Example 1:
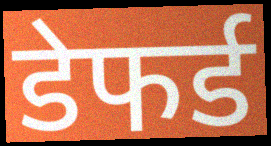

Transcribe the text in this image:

डेफर्ड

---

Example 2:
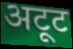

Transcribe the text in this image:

अटूट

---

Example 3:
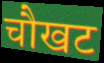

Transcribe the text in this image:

चौखट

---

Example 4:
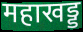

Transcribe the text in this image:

महाखड्ड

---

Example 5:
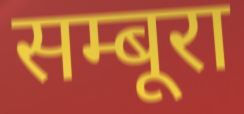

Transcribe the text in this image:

सम्बूरा